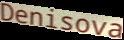
Denisova